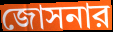
জোসনার